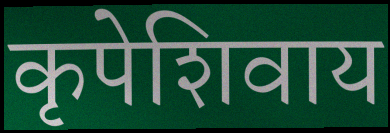
कृपेशिवाय